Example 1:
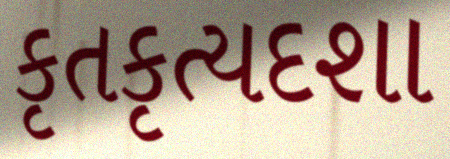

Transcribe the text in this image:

કૃતકૃત્યદશા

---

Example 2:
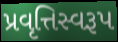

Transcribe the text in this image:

પ્રવૃત્તિસ્વરૂપ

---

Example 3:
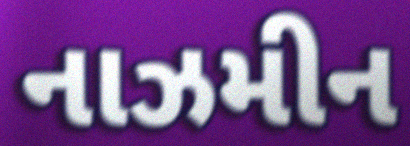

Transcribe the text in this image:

નાઝમીન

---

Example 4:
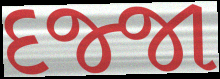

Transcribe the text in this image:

દજ્જા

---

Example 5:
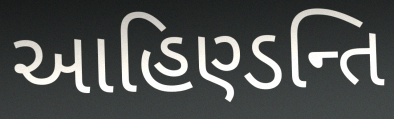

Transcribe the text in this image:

આહિણ્ડન્તિ